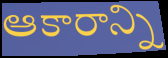
ఆకారాన్ని